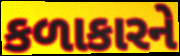
કળાકારને